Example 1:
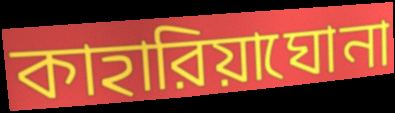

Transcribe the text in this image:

কাহারিয়াঘোনা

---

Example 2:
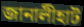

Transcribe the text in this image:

জানালীহাট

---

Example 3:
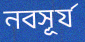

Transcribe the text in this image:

নবসূর্য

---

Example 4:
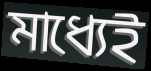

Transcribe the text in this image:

মাধ্যেই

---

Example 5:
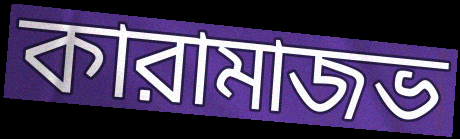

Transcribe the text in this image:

কারামাজভ